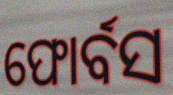
ଫୋର୍ବସ